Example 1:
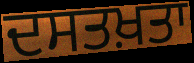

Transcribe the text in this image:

ਦਸਤਖ਼ਤਾ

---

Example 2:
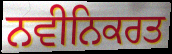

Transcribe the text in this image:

ਨਵੀਨਿਕਰਤ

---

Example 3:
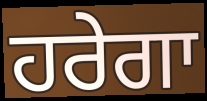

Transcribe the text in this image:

ਹਰੇਗਾ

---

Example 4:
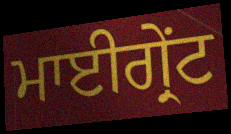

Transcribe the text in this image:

ਮਾਈਗ੍ਰੇਂਟ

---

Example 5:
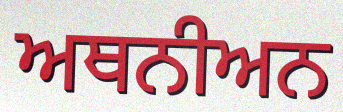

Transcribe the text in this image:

ਅਥਨੀਅਨ